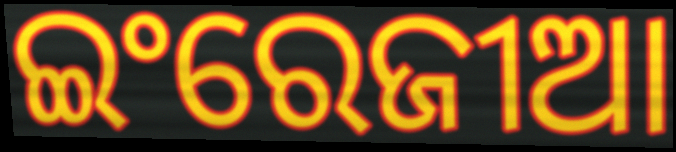
ଇଂରେଜୀଆ